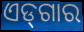
ଏଡ୍‌ଗାର